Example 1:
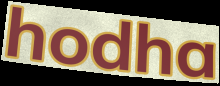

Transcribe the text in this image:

hodha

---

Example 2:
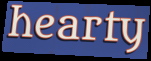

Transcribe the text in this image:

hearty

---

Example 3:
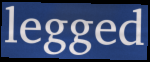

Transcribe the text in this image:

legged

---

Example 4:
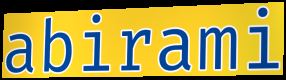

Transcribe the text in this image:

abirami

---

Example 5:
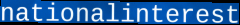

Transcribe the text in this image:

nationalinterest